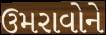
ઉમરાવોને